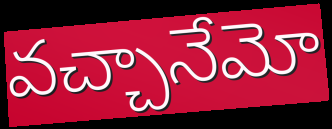
వచ్చానేమో